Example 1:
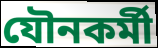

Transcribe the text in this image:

যৌনকর্মী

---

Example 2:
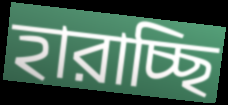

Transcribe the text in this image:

হারাচ্ছি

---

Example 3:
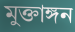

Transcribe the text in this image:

মুক্তাঙ্গন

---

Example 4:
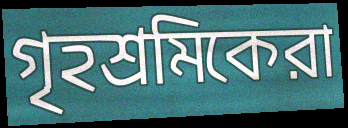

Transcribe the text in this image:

গৃহশ্রমিকেরা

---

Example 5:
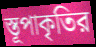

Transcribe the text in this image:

স্তূপাকৃতির